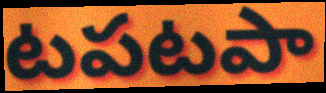
టపటపా